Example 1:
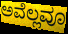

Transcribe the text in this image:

ಅವೆಲ್ಲವೂ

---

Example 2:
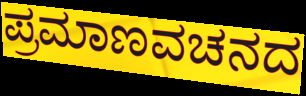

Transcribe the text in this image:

ಪ್ರಮಾಣವಚನದ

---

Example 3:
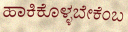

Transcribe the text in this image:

ಹಾಕಿಕೊಳ್ಳಬೇಕೆಂಬ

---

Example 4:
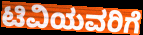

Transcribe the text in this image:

ಟಿವಿಯವರಿಗೆ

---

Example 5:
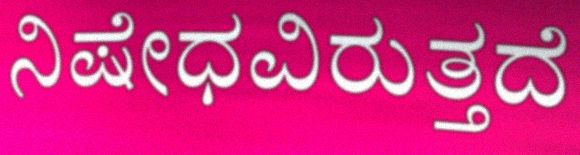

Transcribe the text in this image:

ನಿಷೇಧವಿರುತ್ತದೆ